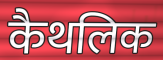
कैथलिक